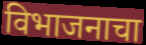
विभाजनाचा